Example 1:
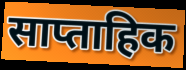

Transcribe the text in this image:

साप्ताहिक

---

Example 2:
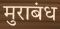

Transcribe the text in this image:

मुराबंध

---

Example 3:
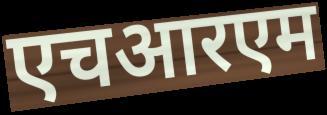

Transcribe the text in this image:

एचआरएम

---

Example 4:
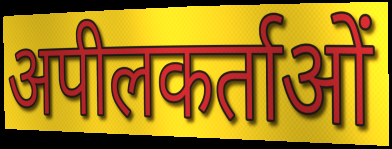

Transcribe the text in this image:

अपीलकर्ताओं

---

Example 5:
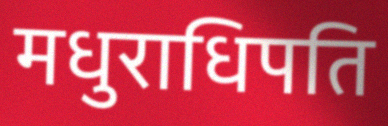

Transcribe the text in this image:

मधुराधिपति